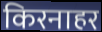
किरनाहर